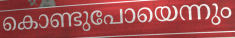
കൊണ്ടുപോയെന്നും